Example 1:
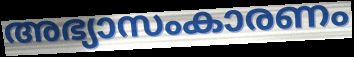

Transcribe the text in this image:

അഭ്യാസംകാരണം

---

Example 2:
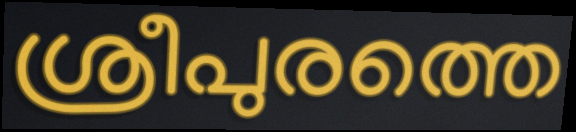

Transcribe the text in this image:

ശ്രീപുരത്തെ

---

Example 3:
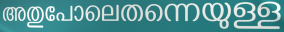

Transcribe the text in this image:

അതുപോലെതന്നെയുള്ള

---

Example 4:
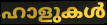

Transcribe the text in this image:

ഹാളുകൾ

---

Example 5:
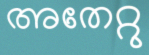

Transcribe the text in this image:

അതേറ്റു